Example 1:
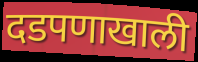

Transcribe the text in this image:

दडपणाखाली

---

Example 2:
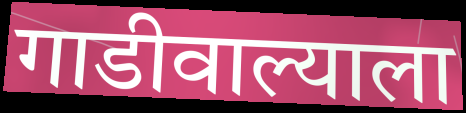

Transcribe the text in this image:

गाडीवाल्याला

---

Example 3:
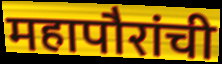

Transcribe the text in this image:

महापौरांची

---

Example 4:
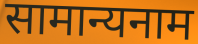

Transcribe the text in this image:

सामान्यनाम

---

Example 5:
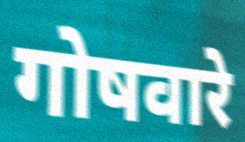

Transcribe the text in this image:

गोषवारे